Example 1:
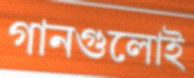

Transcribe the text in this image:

গানগুলোই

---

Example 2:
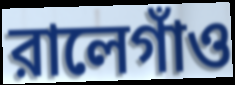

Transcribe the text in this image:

রালেগাঁও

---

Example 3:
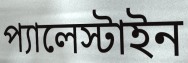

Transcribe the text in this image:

প্যালেস্টাইন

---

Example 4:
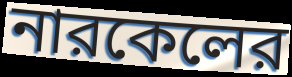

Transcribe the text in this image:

নারকেলের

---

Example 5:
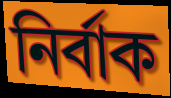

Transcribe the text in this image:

নির্বাক